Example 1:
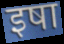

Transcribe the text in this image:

इषा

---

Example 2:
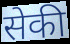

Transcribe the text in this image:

सेकी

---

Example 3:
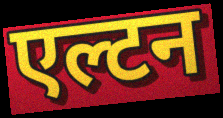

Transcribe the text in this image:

एल्टन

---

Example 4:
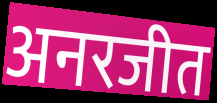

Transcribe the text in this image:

अनरजीत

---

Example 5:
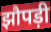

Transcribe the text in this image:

झौपड़ी